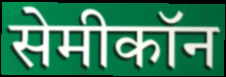
सेमीकॉन